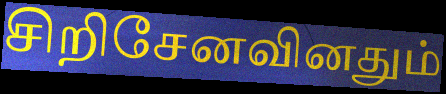
சிறிசேனவினதும்